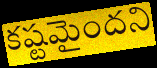
కష్టమైందని